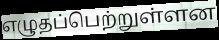
எழுதப்பெற்றுள்ளன